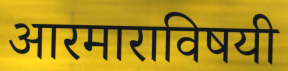
आरमाराविषयी